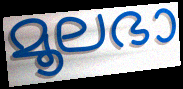
മൂലഭാ